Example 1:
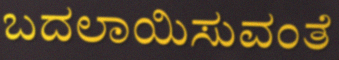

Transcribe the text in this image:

ಬದಲಾಯಿಸುವಂತೆ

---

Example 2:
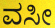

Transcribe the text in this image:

ವಸೀ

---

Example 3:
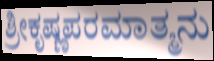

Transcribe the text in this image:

ಶ್ರೀಕೃಷ್ಣಪರಮಾತ್ಮನು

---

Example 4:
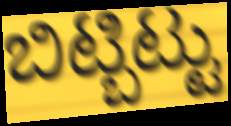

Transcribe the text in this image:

ಬಿಟ್ಬಿಟ್ಟು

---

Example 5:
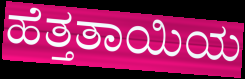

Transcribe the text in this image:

ಹೆತ್ತತಾಯಿಯ